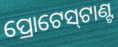
ପ୍ରୋଟେସ୍‌ଟାଣ୍ଟ